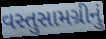
વસ્તુસામગ્રીનું